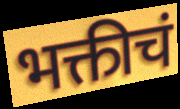
भक्तीचं